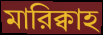
মারিক্বাহ